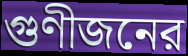
গুণীজনের